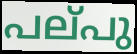
പല്‌പു